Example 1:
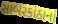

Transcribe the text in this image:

સાબરકાંઠાનાં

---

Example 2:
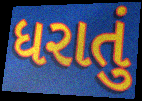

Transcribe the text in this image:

ધરાતું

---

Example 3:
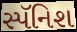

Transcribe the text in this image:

સ્પૅનિશ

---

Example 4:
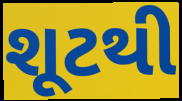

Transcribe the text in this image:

શૂટથી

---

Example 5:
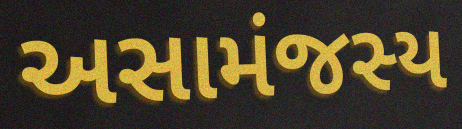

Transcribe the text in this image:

અસામંજસ્ય